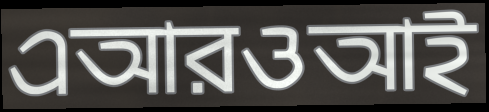
এআরওআই